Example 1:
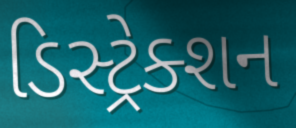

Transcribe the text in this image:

ડિસ્ટ્રેક્શન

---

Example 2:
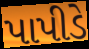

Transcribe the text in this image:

પાપીડે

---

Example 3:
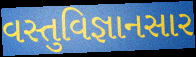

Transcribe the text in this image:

વસ્તુવિજ્ઞાનસાર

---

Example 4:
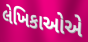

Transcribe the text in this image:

લેખિકાઓએ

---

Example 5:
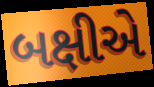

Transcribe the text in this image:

બક્ષીએ